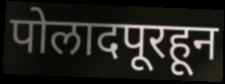
पोलादपूरहून